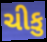
ચીકુ